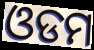
ଓଡମ